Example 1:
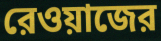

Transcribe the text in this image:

রেওয়াজের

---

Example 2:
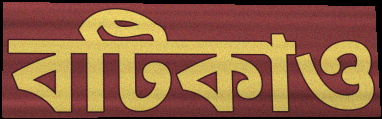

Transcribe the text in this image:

বটিকাও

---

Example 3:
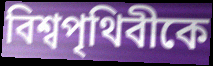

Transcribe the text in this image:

বিশ্বপৃথিবীকে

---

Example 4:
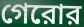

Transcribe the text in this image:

গেরোর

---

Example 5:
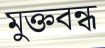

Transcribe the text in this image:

মুক্তবন্ধ